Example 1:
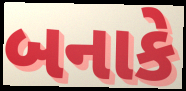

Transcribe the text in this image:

બનાકે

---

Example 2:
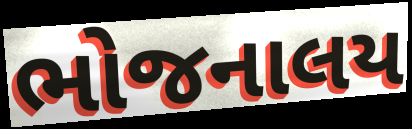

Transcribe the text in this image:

ભોજનાલય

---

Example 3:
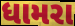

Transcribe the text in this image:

ધામરા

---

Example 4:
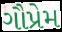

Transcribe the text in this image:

ગૌપ્રેમ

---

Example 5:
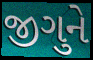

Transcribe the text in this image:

જીગુને